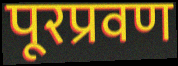
पूरप्रवण